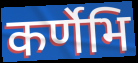
कर्णेभि